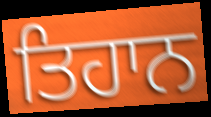
ਤਿਹਾਨ